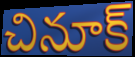
చినూక్